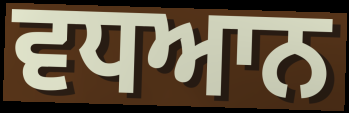
ਵਧਆਨ